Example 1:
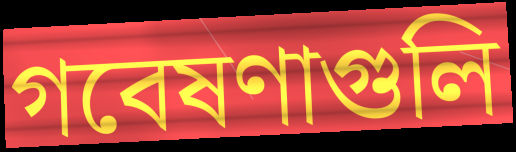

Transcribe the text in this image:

গবেষণাগুলি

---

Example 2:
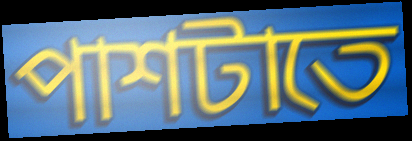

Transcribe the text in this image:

পাশটাতে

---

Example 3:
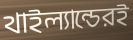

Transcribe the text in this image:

থাইল্যান্ডেরই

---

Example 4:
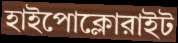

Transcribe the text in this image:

হাইপোক্লোরাইট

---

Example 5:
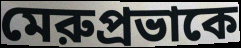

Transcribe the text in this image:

মেরুপ্রভাকে